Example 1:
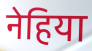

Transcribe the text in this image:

नेहिया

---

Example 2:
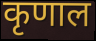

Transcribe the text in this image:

कृणाल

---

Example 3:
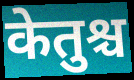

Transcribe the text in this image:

केतुश्च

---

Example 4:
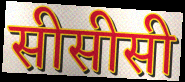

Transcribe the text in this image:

सीसीसी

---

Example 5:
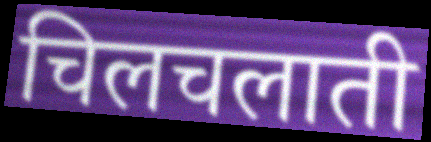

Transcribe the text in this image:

चिलचलाती